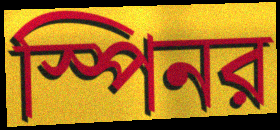
স্পিনর